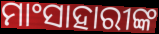
ମାଂସାହାରୀଙ୍କ